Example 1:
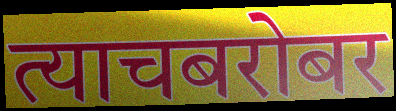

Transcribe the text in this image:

त्‍याचबरोबर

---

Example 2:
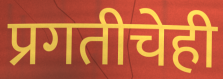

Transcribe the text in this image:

प्रगतीचेही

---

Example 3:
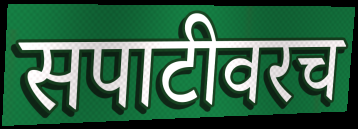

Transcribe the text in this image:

सपाटीवरच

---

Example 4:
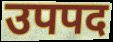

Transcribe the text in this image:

उपपद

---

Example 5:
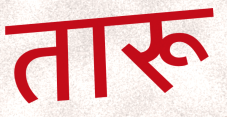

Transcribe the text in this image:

तारू